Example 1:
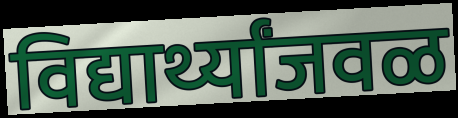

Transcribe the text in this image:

विद्यार्थ्यांजवळ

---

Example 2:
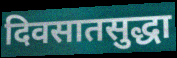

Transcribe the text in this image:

दिवसातसुद्धा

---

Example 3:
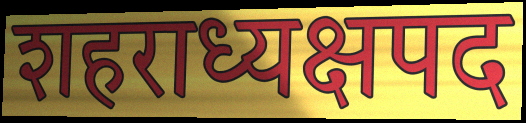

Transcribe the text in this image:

शहराध्यक्षपद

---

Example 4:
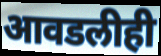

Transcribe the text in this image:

आवडलीही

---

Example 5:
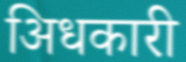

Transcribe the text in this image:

अिधकारी